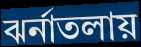
ঝর্নাতলায়